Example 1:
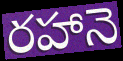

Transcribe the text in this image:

రహానె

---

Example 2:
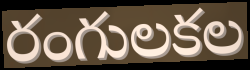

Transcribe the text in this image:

రంగులకల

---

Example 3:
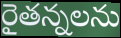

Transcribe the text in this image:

రైతన్నలను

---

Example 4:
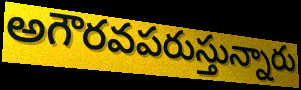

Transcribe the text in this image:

అగౌరవపరుస్తున్నారు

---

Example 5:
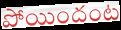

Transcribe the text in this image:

పోయిందంట